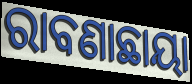
ରାବଣାଛାୟା